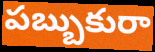
పబ్బుకురా